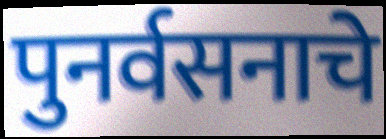
पुनर्वसनाचे